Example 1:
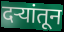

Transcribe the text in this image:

दऱ्यांतून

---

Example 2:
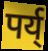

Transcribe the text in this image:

पर्य्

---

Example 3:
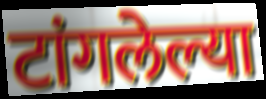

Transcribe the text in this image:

टांगलेल्या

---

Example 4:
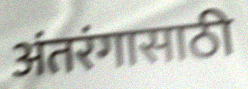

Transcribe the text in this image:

अंतरंगासाठी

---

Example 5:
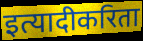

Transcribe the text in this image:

इत्यादीकरिता